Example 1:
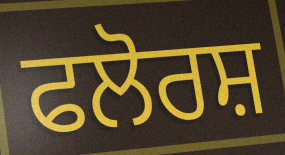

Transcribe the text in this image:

ਫਲੋਰਸ਼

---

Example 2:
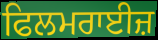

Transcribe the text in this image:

ਫਿਲਮਰਾਈਜ਼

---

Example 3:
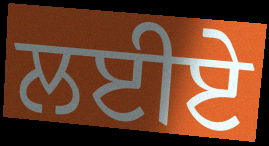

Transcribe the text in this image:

ਲਈਏ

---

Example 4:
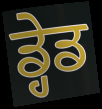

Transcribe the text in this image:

ਡ੍ਹੇਡ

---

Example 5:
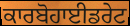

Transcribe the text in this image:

ਕਾਰਬੋਹਾਈਡਰੇਟ